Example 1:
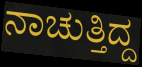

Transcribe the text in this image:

ನಾಚುತ್ತಿದ್ದ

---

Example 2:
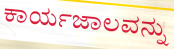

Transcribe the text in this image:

ಕಾರ್ಯಜಾಲವನ್ನು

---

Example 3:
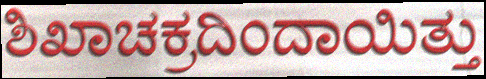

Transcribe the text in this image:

ಶಿಖಾಚಕ್ರದಿಂದಾಯಿತ್ತು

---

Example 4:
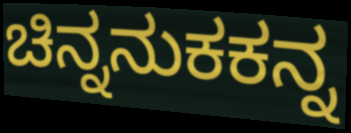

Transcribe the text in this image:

ಚಿನ್ನನುಕಕನ್ನ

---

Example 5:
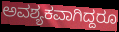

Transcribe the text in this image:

ಅವಶ್ಯಕವಾಗಿದ್ದರೂ